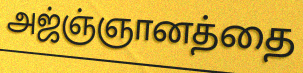
அஜ்ஞ்ஞானத்தை